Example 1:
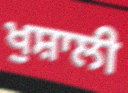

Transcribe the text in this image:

ਖੁਸ਼ਾਲੀ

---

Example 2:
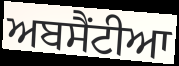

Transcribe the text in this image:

ਅਬਸੈਂਟੀਆ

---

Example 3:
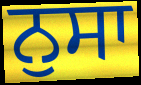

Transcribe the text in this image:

ਨੁਸਾ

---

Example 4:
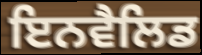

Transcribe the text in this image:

ਇਨਵੈਲਿਡ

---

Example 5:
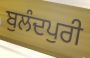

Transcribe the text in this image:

ਬੁਲੰਦਪੁਰੀ